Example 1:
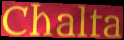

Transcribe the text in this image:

Chalta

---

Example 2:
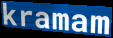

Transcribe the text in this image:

kramam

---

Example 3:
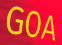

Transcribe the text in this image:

GOA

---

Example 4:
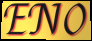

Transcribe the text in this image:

ENO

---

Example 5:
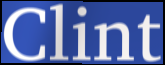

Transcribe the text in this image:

Clint